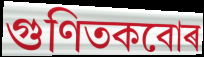
গুণিতকবোৰ